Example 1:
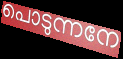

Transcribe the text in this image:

പൊടുന്നനേ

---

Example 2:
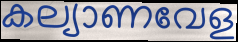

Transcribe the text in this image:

കല്യാണവേള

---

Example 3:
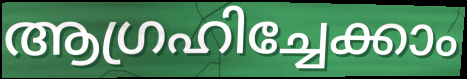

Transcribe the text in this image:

ആഗ്രഹിച്ചേക്കാം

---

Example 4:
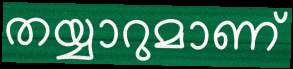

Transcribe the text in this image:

തയ്യാറുമാണ്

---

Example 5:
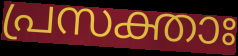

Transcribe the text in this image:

പ്രസക്താഃ